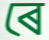
ৰে